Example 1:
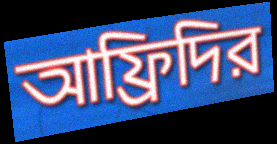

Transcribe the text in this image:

আফ্রিদির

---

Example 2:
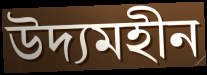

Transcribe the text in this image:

উদ্যমহীন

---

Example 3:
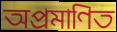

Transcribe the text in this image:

অপ্রমাণিত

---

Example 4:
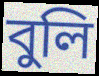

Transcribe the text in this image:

বুলি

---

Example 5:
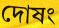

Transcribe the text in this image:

দোষং